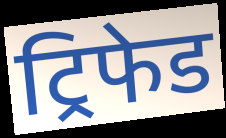
ट्रिफेड